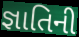
જ્ઞાતિની